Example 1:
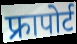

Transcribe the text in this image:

फ्रापोर्ट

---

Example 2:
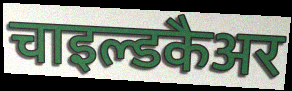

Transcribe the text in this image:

चाइल्डकैअर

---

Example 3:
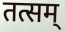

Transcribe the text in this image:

तत्सम्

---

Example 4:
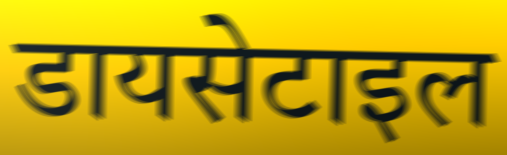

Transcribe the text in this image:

डायसेटाइल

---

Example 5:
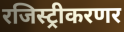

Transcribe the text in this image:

रजिस्ट्रीकरणर